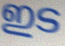
ഇട